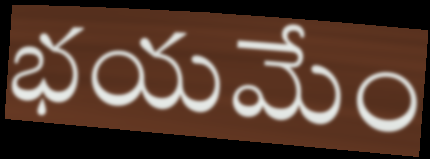
భయమేం